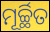
ମୂର୍ଚ୍ଛିତ